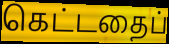
கெட்டதைப்